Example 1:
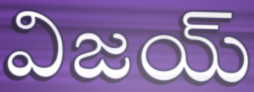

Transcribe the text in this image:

విజయ్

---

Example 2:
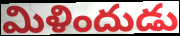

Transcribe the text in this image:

మిళిందుడు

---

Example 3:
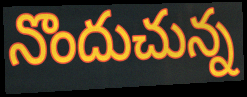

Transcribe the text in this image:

నొందుచున్న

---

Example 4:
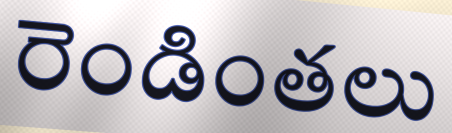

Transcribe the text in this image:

రెండింతలు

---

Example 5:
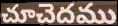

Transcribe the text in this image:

చూచెదము